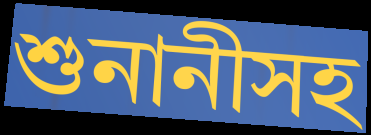
শুনানীসহ